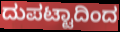
ದುಪಟ್ಟಾದಿಂದ